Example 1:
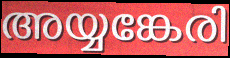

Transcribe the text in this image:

അയ്യങ്കേരി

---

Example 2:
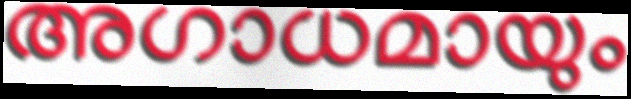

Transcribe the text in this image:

അഗാധമായും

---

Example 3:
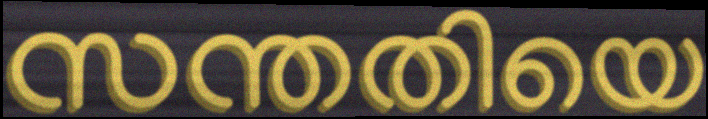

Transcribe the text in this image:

സന്തതിയെ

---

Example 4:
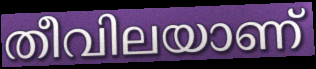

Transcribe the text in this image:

തീവിലയാണ്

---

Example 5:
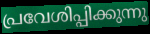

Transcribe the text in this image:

പ്രവേശിപ്പിക്കുന്നു